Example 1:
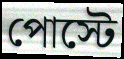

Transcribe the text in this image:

পোস্টে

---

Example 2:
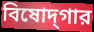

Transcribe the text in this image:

বিষোদ্‌গার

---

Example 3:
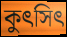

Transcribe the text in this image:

কুৎসিৎ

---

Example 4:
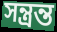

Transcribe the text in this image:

সন্ত্রন্ত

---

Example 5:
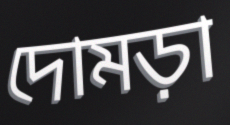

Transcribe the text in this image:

দোমড়া